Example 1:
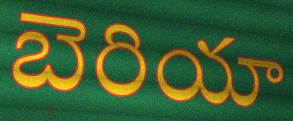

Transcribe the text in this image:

బెరియా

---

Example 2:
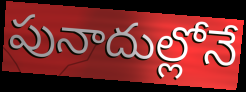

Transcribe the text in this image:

పునాదుల్లోనే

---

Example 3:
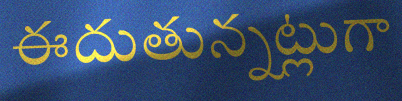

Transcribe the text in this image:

ఈదుతున్నట్లుగా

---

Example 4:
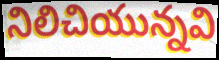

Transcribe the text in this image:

నిలిచియున్నవి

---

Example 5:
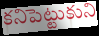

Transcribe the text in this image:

కనిపెట్టుకుని